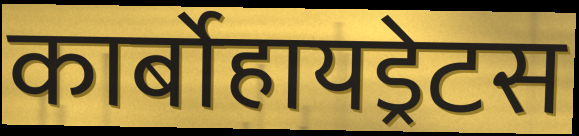
कार्बोहायड्रेटस